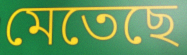
মেতেছে